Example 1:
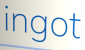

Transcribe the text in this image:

ingot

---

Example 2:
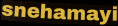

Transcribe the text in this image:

snehamayi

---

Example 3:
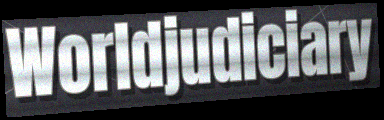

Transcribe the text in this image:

Worldjudiciary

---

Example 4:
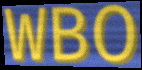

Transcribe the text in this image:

WBO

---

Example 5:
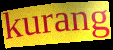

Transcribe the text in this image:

kurang